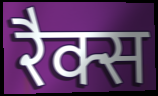
रैक्स